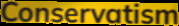
Conservatism